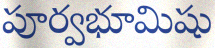
పూర్వభూమిషు